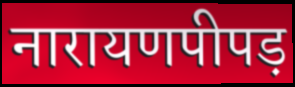
नारायणपीपड़